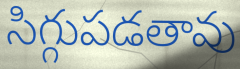
సిగ్గుపడతావు